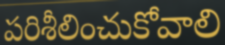
పరిశీలించుకోవాలి